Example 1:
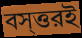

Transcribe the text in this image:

বস্ত্তরই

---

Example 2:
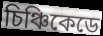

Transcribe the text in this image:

চিঞ্চিকেডে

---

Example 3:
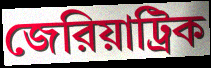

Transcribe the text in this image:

জেরিয়াট্রিক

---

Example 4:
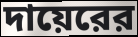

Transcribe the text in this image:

দায়েরের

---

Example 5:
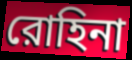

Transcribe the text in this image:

রোহিনা